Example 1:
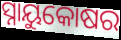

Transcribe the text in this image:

ସ୍ନାୟୁକୋଷର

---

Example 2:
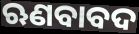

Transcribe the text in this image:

ଋଣବାବଦ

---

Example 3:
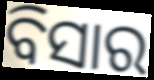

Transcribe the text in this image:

ବିସାର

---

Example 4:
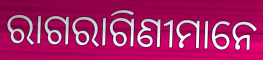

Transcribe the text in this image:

ରାଗରାଗିଣୀମାନେ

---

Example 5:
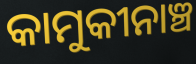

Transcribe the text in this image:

କାମୁକୀନାଞ୍ଚ